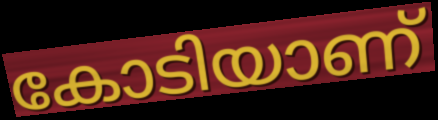
കോടിയാണ്